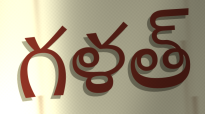
గళత్